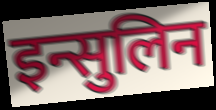
इन्सुलिन